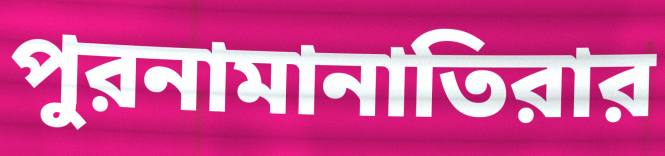
পুরনামানাতিরার